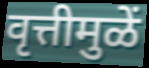
वृत्तीमुळें